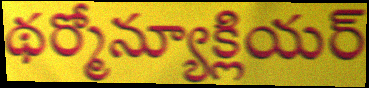
థర్మోన్యూక్లియర్